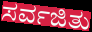
ಸರ್ವಜಿತು